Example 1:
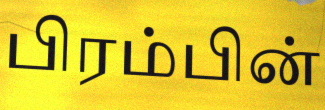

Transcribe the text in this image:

பிரம்பின்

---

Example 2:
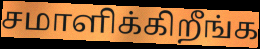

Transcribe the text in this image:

சமாளிக்கிறீங்க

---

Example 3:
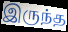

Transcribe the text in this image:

இருந்த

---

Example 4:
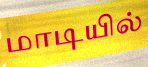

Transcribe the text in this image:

மாடியில்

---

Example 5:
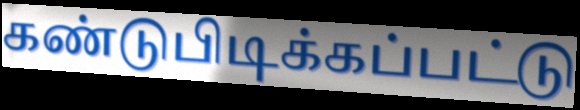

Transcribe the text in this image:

கண்டுபிடிக்கப்பட்டு